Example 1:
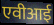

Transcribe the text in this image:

एवीआई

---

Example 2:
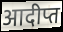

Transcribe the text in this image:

आदीप्त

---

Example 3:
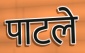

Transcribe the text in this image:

पाटले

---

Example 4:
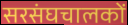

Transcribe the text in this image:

सरसंघचालकों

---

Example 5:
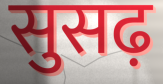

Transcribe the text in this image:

सुसढ़